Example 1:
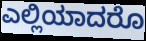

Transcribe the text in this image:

ಎಲ್ಲಿಯಾದರೊ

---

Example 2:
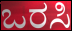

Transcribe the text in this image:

ಒರಸಿ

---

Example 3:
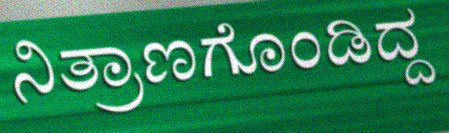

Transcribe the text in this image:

ನಿತ್ರಾಣಗೊಂಡಿದ್ದ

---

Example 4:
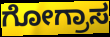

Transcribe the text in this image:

ಗೋಗ್ರಾಸ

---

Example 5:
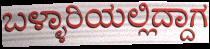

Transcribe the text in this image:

ಬಳ್ಳಾರಿಯಲ್ಲಿದ್ದಾಗ